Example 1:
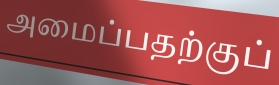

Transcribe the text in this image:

அமைப்பதற்குப்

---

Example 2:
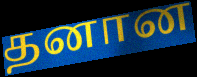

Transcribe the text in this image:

தனான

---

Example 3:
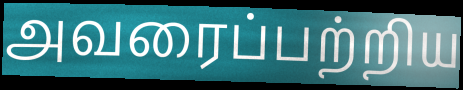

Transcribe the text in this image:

அவரைப்பற்றிய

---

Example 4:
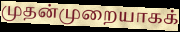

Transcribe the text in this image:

முதன்முறையாகக்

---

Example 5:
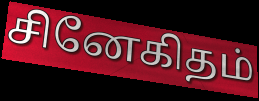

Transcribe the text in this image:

சினேகிதம்